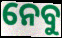
ନେବୁ